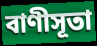
বাণীসূতা